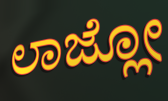
ಲಾಜ್ಲೋ